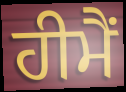
ਹੀਮੈਂ